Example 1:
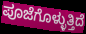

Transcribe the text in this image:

ಪೂಜೆಗೊಳ್ಳುತ್ತಿದೆ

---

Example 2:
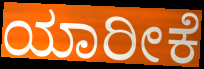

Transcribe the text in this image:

ಯಾರೀಕೆ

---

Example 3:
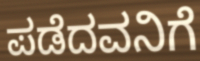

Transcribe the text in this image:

ಪಡೆದವನಿಗೆ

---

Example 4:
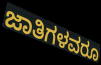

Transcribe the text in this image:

ಜಾತಿಗಳವರೂ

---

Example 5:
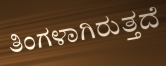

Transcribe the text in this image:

ತಿಂಗಳಾಗಿರುತ್ತದೆ